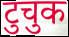
टुचुक